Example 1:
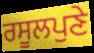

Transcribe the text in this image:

ਰਸੂਲਪੁਣੇ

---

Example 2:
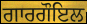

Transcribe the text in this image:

ਗਾਰਗੌਇਲ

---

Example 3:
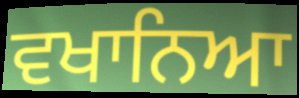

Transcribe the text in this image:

ਵਖਾਨਿਆ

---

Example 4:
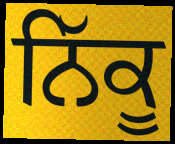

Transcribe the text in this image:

ਨਿੱਕੂ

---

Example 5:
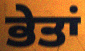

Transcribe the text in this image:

ਭੇਤਾਂ